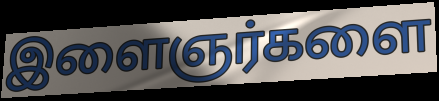
இளைஞர்களை